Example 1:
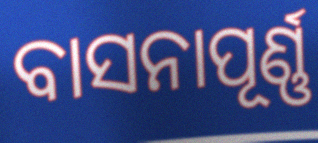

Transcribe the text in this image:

ବାସନାପୂର୍ଣ୍ଣ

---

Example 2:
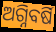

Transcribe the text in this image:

ଅଗ୍ନିବର୍ଷି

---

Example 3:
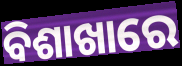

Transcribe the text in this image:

ବିଶାଖାରେ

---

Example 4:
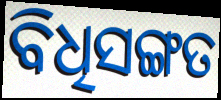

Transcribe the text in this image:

ବିଧିସଙ୍ଗତ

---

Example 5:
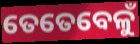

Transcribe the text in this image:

ତେତେବେଳୁଁ